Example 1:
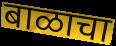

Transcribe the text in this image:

बाळाचा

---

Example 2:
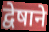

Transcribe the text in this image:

द्वेषाने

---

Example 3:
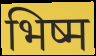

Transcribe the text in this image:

भिष्म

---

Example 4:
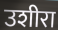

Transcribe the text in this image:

उशीरा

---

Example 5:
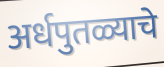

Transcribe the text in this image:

अर्धपुतळ्याचे